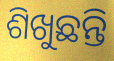
ଶିଖୁଛନ୍ତି